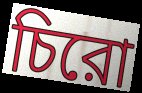
চিরো